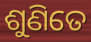
ଶୁଣିତେ